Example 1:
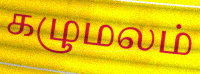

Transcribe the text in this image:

கழுமலம்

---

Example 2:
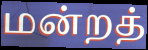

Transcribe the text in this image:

மன்றத்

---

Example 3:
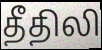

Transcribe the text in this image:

தீதிலி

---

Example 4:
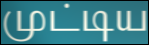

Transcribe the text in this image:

முட்டிய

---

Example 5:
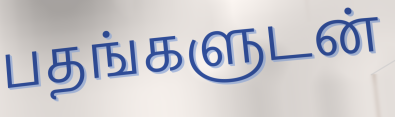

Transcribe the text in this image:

பதங்களுடன்